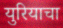
युरियाचा